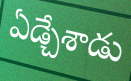
ఏడ్చేశాడు